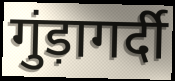
गुंड़ागर्दी